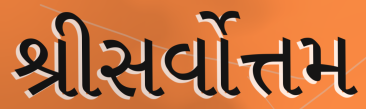
શ્રીસર્વોત્તમ